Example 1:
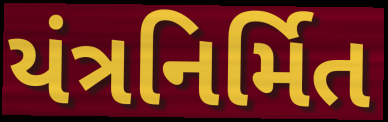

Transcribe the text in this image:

યંત્રનિર્મિત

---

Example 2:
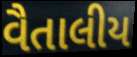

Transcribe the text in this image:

વૈતાલીય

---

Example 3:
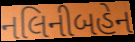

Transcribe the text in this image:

નલિનીબહેન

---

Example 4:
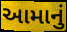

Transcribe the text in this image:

આમાનું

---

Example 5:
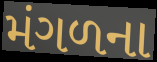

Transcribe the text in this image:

મંગળના